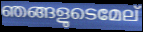
ഞങ്ങളുടെമേല്